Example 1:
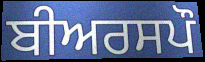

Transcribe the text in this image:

ਬੀਅਰਸਪੌ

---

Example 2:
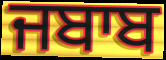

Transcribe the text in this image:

ਜਬਾਬ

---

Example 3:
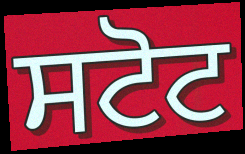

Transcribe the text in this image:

ਸਟੋਟ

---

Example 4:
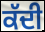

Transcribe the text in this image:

ਕੱਦੀ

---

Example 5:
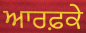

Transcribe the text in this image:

ਆਰਫ਼ਕੇ